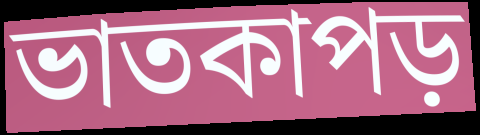
ভাতকাপড়